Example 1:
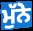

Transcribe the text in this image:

ਮੁੱਨੇ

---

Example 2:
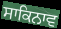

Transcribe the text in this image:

ਸਾਕਿਨਾਵ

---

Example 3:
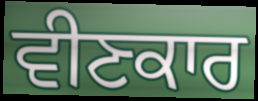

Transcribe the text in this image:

ਵੀਣਕਾਰ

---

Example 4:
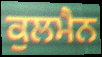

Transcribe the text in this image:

ਕੁਲਮੈਨ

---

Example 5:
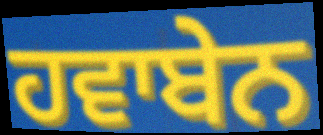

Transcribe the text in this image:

ਹਵਾਬੇਨ